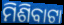
ମିଶିବାଟା